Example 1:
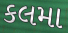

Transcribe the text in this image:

કલમા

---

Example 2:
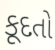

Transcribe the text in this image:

કૂદતો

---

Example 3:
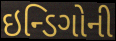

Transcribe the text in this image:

ઇન્ડિગોની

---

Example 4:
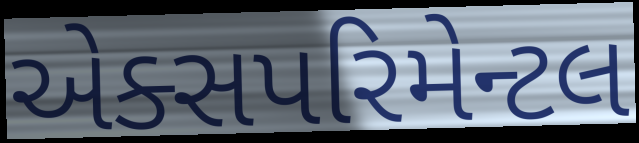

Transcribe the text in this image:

એક્સપરિમેન્ટલ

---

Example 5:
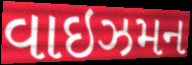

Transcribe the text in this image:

વાઇઝમન